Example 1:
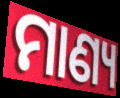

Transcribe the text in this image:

ମାଣ୍ୟ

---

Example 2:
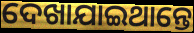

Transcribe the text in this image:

ଦେଖାଯାଇଥାନ୍ତେ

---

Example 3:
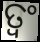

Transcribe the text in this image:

ତ୍ୱଂ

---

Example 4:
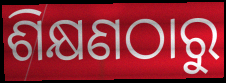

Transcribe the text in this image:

ଶିକ୍ଷଣଠାରୁ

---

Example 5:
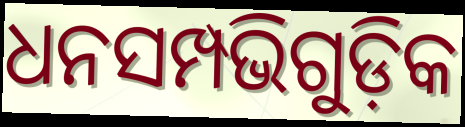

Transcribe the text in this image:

ଧନସମ୍ପଭିଗୁଡ଼ିକ